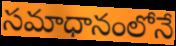
సమాధానంలోనే